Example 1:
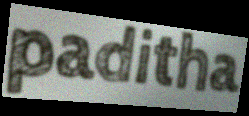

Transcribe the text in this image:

paditha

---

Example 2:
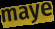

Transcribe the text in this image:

maye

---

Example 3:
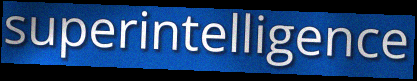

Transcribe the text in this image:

superintelligence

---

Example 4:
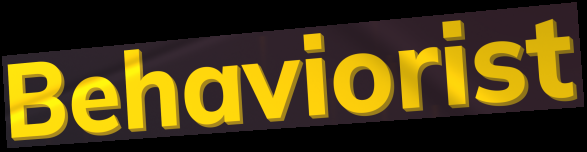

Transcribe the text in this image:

Behaviorist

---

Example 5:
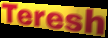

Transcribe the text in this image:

Teresh